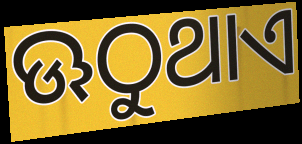
ଊଠୁଥାଏ